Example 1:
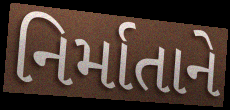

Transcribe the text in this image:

નિર્માતાને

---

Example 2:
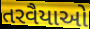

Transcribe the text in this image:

તરવૈયાઓ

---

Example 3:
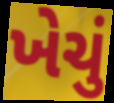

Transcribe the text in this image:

ખેચું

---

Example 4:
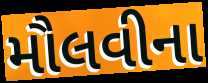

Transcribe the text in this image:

મૌલવીના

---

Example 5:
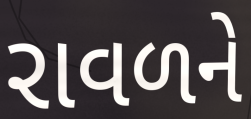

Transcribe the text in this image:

રાવળને